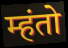
म्हंतो